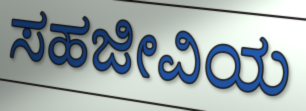
ಸಹಜೀವಿಯ